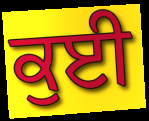
ਕੁਈ